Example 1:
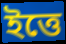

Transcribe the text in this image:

ইত্তে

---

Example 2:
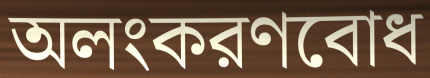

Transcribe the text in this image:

অলংকরণবোধ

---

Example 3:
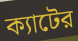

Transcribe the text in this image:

ক্যাটের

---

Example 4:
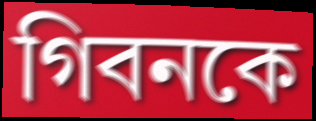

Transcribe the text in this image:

গিবনকে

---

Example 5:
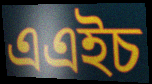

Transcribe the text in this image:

এএইচ